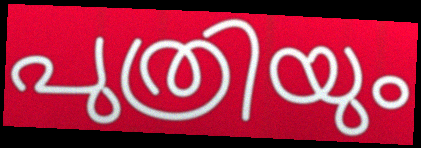
പുത്രിയും